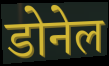
डोनेल